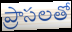
ప్రాసలతో